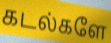
கடல்களே